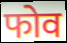
फोव